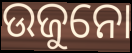
ଉଜୁନୋ